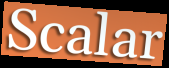
Scalar